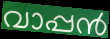
വാപ്പൻ